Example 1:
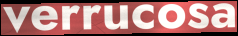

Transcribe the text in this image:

verrucosa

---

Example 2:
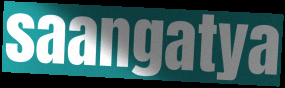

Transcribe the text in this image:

saangatya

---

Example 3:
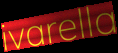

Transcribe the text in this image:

ivarella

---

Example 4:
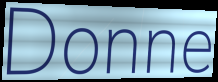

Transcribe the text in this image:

Donne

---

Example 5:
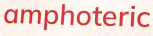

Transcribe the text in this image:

amphoteric